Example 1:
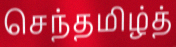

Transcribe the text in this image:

செந்தமிழ்த்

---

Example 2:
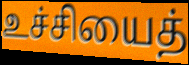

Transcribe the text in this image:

உச்சியைத்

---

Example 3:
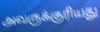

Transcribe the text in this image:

அவருக்குரியது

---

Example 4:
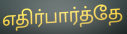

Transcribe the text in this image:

எதிர்பார்த்தே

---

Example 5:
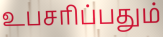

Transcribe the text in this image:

உபசரிப்பதும்